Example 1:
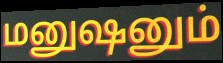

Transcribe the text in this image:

மனுஷனும்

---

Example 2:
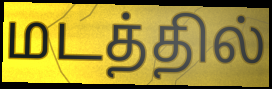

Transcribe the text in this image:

மடத்தில்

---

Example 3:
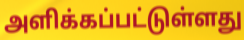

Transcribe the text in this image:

அளிக்கப்பட்டுள்ளது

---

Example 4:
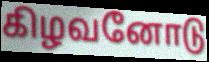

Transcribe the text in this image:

கிழவனோடு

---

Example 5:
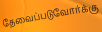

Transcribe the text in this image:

தேவைப்படுவோர்க்கு